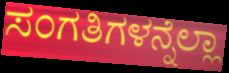
ಸಂಗತಿಗಳನ್ನೆಲ್ಲಾ